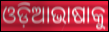
ଓଡ଼ିଆଭାଷାକୁ